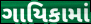
ગાયિકામાં